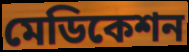
মেডিকেশন